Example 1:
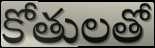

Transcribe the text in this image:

కోతులతో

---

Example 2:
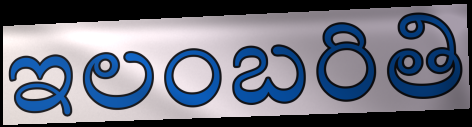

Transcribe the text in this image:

ఇలంబరితి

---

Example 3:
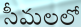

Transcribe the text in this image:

సీమలలో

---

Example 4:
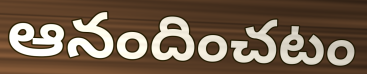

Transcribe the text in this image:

ఆనందించటం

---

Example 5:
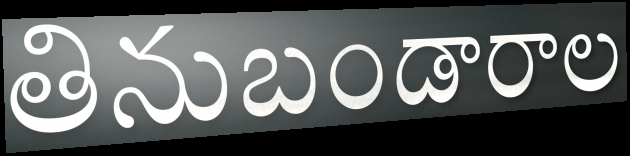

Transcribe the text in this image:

తినుబండారాల